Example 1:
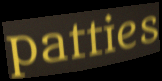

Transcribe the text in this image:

patties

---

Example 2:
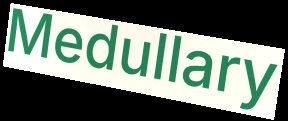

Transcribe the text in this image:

Medullary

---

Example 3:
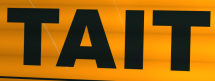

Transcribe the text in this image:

TAIT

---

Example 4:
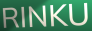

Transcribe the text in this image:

RINKU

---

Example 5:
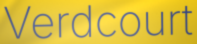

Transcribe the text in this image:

Verdcourt